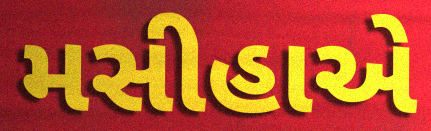
મસીહાએ